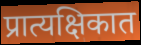
प्रात्यक्षिकात